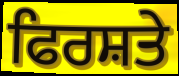
ਫਿਰਸ਼ਤੇ